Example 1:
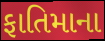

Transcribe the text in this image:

ફાતિમાના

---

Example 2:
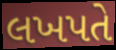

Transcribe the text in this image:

લખપતે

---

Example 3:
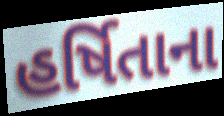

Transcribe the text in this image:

હર્ષિતાના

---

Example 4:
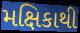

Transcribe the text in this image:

મક્ષિકાથી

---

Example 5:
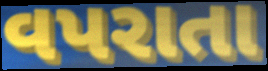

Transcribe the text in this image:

વપરાતા